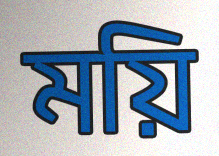
ময়ি